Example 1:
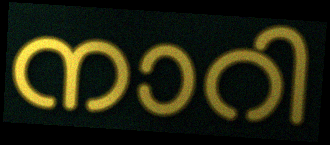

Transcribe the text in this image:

നാറി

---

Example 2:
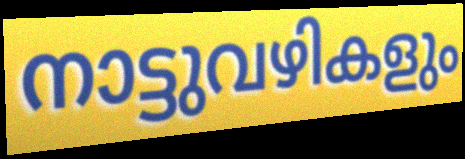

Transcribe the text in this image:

നാട്ടുവഴികളും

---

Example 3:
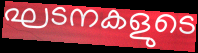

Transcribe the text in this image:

ഘടനകളുടെ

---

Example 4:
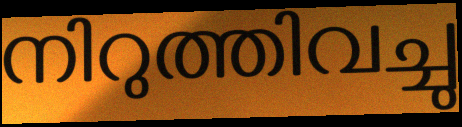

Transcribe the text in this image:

നിറുത്തിവച്ചു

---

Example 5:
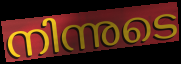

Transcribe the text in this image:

നിന്നുടെ